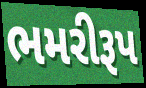
ભમરીરૂપ